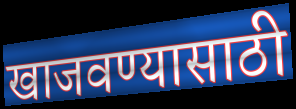
खाजवण्यासाठी